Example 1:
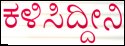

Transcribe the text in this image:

ಕಳಿಸಿದ್ದೀನಿ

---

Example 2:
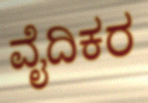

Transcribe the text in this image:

ವೈದಿಕರ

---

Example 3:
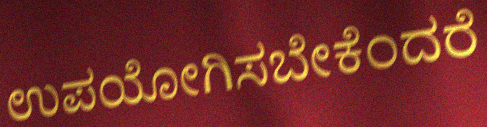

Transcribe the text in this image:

ಉಪಯೋಗಿಸಬೇಕೆಂದರೆ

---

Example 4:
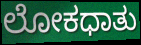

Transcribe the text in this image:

ಲೋಕಧಾತು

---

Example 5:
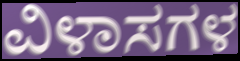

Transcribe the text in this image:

ವಿಳಾಸಗಳ